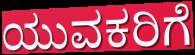
ಯುವಕರಿಗೆ